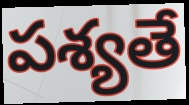
పశ్యతే